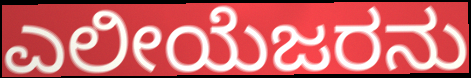
ಎಲೀಯೆಜರನು